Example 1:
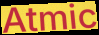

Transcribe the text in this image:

Atmic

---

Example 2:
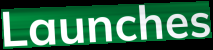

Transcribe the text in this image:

Launches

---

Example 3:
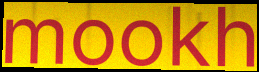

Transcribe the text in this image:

mookh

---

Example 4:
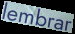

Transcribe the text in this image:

lembrar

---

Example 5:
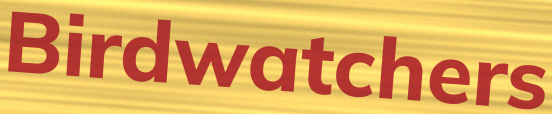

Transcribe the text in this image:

Birdwatchers